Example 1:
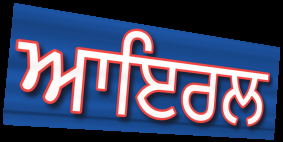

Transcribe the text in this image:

ਆਇਰਲ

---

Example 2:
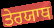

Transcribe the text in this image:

ਤੇਰਯਾਥ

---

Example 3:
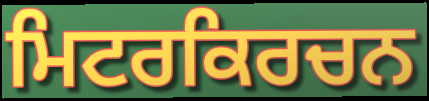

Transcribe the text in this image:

ਮਿਟਰਕਿਰਚਨ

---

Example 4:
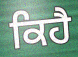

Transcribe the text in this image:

ਕਿਹੈ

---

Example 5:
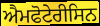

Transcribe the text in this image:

ਐਮਫੋਟੇਰੀਸਿਨ